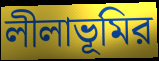
লীলাভূমির